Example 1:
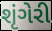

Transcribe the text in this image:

શૃંગેરી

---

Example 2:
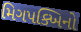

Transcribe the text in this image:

મિગપક્ખિનો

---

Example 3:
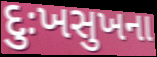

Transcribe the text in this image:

દુઃખસુખના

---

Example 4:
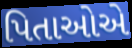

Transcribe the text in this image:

પિતાઓએ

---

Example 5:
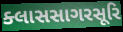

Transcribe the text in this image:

ક્લાસસાગરસૂરિ